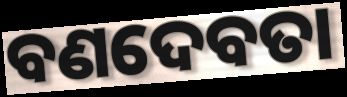
ବଣଦେବତା